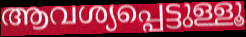
ആവശ്യപ്പെട്ടുള്ളൂ